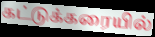
கட்டுக்கரையில்